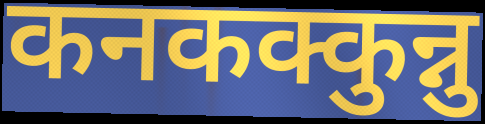
कनकक्कुन्नु